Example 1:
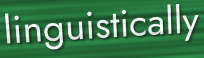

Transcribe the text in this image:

linguistically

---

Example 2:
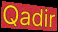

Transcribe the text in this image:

Qadir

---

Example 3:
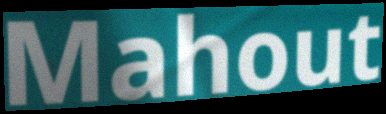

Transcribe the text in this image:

Mahout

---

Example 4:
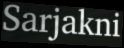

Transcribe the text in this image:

Sarjakni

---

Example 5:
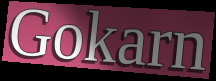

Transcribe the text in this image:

Gokarn